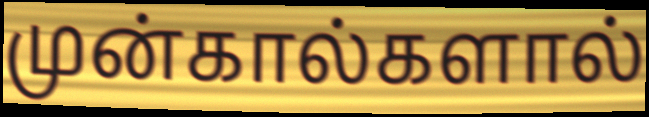
முன்கால்களால்